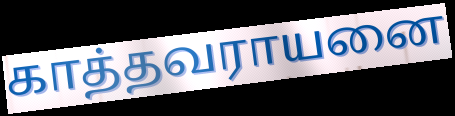
காத்தவராயனை